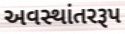
અવસ્થાંતરરૂપ